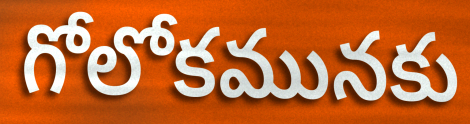
గోలోకమునకు